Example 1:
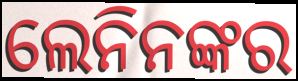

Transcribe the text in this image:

ଲେନିନଙ୍କର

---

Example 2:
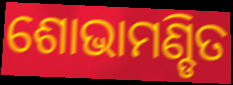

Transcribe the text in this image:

ଶୋଭାମଣ୍ଡିତ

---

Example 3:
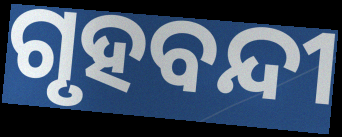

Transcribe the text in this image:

ଗୃହବନ୍ଦୀ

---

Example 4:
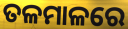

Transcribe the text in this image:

ତଳମାଳରେ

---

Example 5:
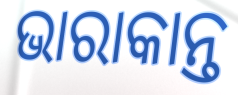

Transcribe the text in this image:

ଭାରାକାନ୍ତ